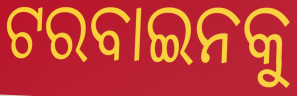
ଟରବାଇନକୁ